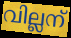
വില്ലന്